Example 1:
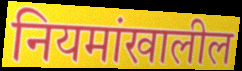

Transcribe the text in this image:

नियमांखालील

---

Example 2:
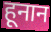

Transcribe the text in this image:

हूनान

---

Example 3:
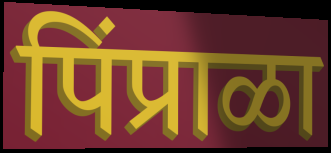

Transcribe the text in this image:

पिंप्राळा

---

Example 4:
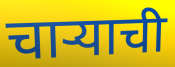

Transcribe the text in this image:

चाऱ्याची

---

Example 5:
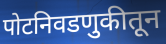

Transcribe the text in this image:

पोटनिवडणुकीतून